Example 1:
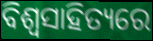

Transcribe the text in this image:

ବିଶ୍ବସାହିତ୍ୟରେ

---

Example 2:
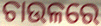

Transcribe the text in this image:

ଚାଉଳରେ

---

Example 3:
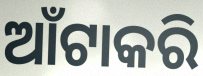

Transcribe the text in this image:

ଆଁଟାକରି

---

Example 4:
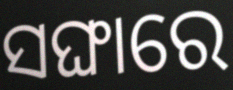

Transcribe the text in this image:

ସଙ୍ଘାରେ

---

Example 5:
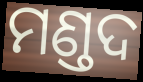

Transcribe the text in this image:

ମଣ୍ଡଦ